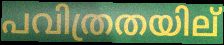
പവിത്രതയില്